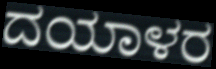
ದಯಾಳರ